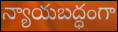
న్యాయబద్ధంగా